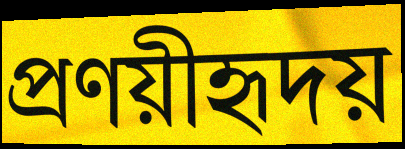
প্রণয়ীহৃদয়